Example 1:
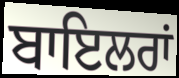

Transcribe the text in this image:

ਬਾਇਲਰਾਂ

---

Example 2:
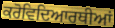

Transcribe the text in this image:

ਕਰੋਵਿਦਿਆਰਥੀਆਂ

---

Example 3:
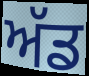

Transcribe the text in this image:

ਅੱਡ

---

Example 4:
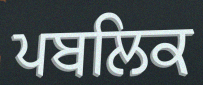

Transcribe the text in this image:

ਪਬਲਿਕ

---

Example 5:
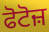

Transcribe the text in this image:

ਫੋਟੋਜ਼